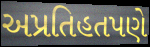
અપ્રતિહતપણે